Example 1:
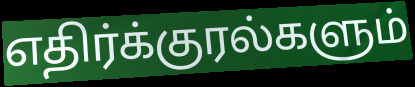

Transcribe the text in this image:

எதிர்க்குரல்களும்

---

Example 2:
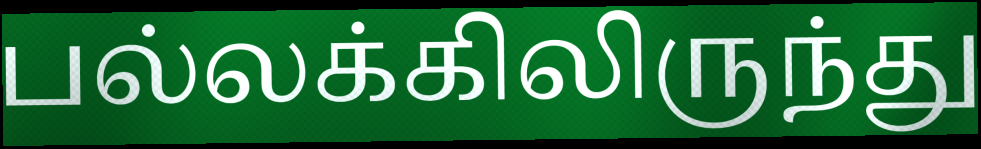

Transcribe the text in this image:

பல்லக்கிலிருந்து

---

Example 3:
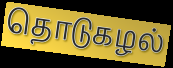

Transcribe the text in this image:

தொடுகழல்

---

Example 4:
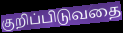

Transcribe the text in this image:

குறிப்பிடுவதை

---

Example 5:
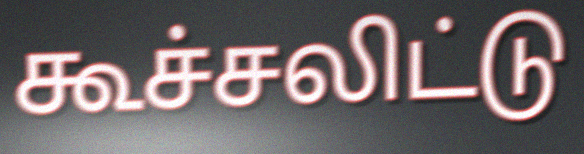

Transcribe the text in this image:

கூச்சலிட்டு